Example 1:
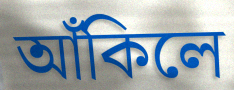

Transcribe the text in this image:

আঁকিলে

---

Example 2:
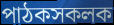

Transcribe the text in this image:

পাঠকসকলক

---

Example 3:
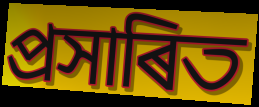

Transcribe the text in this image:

প্ৰসাৰিত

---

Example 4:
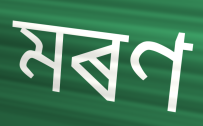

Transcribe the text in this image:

মৰণ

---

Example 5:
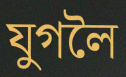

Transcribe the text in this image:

যুগলৈ